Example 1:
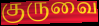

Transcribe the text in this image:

குருவை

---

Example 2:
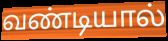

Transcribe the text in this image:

வண்டியால்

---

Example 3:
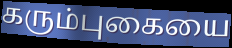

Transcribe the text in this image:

கரும்புகையை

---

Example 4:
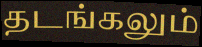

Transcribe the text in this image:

தடங்கலும்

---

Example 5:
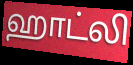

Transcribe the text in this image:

ஹாட்லி